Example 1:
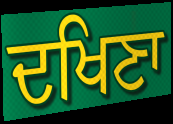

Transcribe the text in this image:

ਦਖਿਣਾ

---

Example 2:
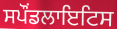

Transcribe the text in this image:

ਸਪੌਂਡਲਾਇਟਿਸ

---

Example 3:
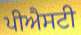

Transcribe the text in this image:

ਪੀਐਸਟੀ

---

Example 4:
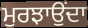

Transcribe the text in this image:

ਮੁਰਝਾਉਂਦਾ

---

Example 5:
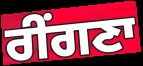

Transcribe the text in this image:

ਰੀਂਗਣਾ